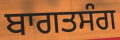
ਬਾਗਤਸੰਗ